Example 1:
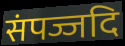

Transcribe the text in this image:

संपज्जदि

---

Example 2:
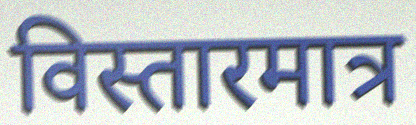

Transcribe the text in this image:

विस्तारमात्र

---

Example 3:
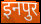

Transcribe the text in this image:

इनपुर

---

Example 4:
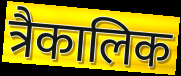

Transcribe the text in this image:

त्रैकालिक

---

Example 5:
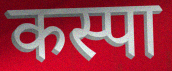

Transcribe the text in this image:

कस्पा